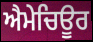
ਐਮੇਚਿਊਰ